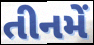
તીનમેં